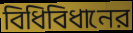
বিধিবিধানের